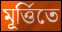
মূর্ত্তিতে